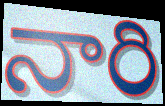
నారి